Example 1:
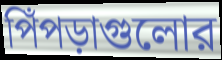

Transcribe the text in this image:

পিঁপড়াগুলোর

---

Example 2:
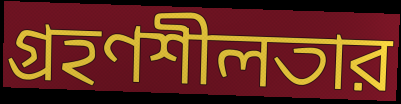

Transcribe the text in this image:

গ্রহণশীলতার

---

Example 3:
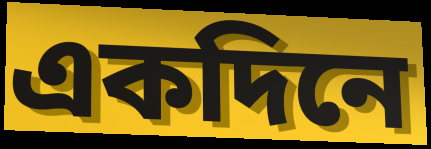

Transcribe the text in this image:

একদিনে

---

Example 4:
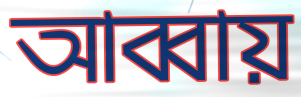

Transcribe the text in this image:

আব্বায়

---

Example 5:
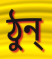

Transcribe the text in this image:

ঠুন্